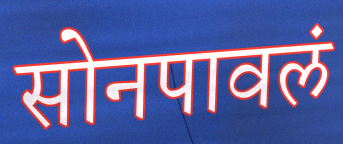
सोनपावलं